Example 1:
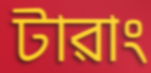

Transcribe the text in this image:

টাৱাং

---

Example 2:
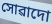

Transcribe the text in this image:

সোৱাদো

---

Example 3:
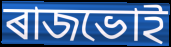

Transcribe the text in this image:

ৰাজভোই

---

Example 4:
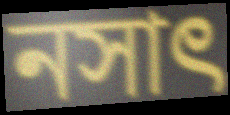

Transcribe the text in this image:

নসাৎ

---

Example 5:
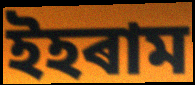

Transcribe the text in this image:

ইহৰাম